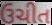
ઉચીત